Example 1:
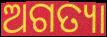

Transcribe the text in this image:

ଅଗତ୍ୟା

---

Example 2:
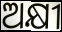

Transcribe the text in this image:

ଅକ୍ଷୀ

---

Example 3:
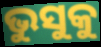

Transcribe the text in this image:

ଭୁସୁକୁ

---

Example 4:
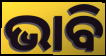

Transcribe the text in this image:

ଭାବି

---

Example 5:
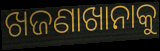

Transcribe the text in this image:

ଖଜଣାଖାନାକୁ